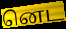
னெட